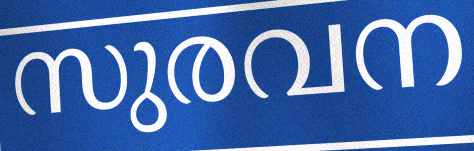
സുരവന